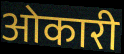
ओकारी